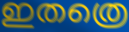
ഇതത്രെ